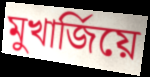
মুখাৰ্জিয়ে